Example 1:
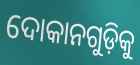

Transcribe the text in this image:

ଦୋକାନଗୁଡ଼ିକୁ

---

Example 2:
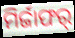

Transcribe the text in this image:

ମିର୍ଜାଫର୍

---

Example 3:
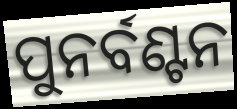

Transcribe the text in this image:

ପୁନର୍ବଣ୍ଟନ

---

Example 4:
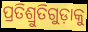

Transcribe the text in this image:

ପ୍ରତିଶ୍ରୁତିଗୁଡ଼ାକୁ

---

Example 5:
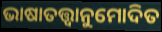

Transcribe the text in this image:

ଭାଷାତତ୍ତ୍ୱାନୁମୋଦିତ